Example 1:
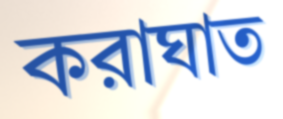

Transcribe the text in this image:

করাঘাত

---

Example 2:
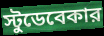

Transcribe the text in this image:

স্টুডেবেকার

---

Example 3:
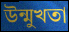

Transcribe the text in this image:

উন্মুখতা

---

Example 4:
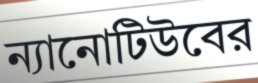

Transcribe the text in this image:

ন্যানোটিউবের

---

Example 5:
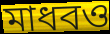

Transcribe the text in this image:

মাধবও